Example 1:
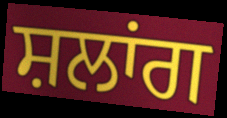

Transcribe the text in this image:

ਸ਼ਲਾਂਗ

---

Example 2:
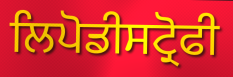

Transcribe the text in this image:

ਲਿਪੋਡੀਸਟ੍ਰੋਫੀ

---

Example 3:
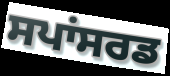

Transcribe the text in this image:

ਸਪਾਂਸਰਡ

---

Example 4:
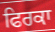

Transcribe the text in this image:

ਫਿਰਕਾ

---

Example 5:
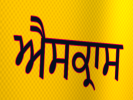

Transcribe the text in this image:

ਐਸਕ੍ਰਾਸ